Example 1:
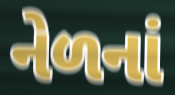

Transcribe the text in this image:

નેળનાં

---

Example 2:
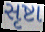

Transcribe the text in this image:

સૃષ્ટા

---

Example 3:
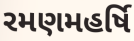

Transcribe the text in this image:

રમણમહર્ષિ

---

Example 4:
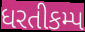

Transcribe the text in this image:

ધરતીકમ્પ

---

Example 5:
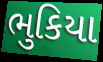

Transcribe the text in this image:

ભુકિયા